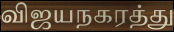
விஜயநகரத்து